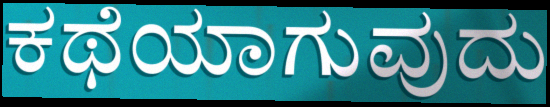
ಕಥೆಯಾಗುವುದು